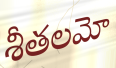
శీతలమో